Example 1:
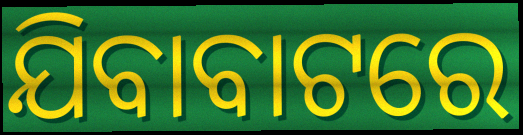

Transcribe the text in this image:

ଯିବାବାଟରେ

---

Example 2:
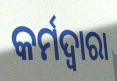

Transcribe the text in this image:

କର୍ମଦ୍ୱାରା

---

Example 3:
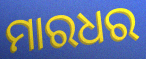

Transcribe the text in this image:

ମାରଧର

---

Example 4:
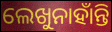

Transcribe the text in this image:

ଲେଖୁନାହାଁନ୍ତି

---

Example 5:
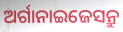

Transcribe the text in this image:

ଅର୍ଗାନାଇଜେସନ୍ରୁ